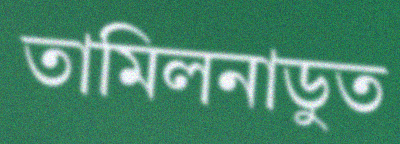
তামিলনাডুত